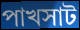
পাখসাট